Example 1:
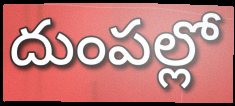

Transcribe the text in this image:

దుంపల్లో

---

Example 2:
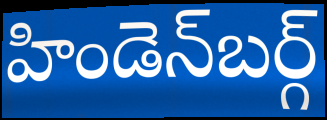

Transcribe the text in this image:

హిండెన్‌బర్గ్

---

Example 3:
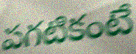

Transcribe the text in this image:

పగటికంటే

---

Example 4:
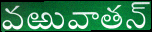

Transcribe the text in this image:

వఱువాతన్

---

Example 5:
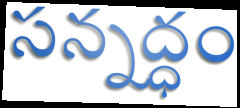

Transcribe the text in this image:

సన్నద్ధం